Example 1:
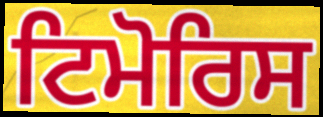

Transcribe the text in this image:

ਟਿਮੋਰਿਸ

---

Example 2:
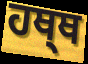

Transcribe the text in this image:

ਹਥ੍ਥ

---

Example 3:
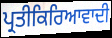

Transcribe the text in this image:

ਪ੍ਰਤੀਕਿਰਿਆਵਾਦੀ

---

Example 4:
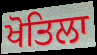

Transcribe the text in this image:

ਖੋਤਿਲਾ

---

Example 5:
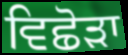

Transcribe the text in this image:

ਵਿਛੋੜਾ